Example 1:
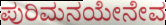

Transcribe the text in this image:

ಪುರಿಮನಯೇನೇವ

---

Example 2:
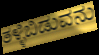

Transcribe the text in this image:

ತಳ್ಳಿಬಿಡುವನು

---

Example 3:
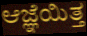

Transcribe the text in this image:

ಆಜ್ಞೆಯಿತ್ತ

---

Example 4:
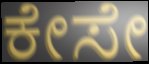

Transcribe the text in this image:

ಕೇಸೇ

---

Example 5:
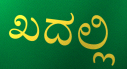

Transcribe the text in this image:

ಖದಲ್ಲಿ